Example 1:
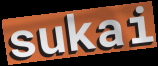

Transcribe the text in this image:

sukai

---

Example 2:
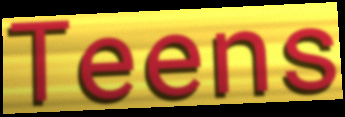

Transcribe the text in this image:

Teens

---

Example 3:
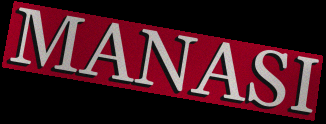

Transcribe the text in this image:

MANASI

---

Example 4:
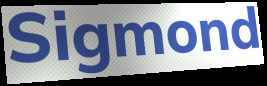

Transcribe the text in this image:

Sigmond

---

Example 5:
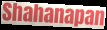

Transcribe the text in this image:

Shahanapan